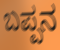
ಬಪ್ಪನ